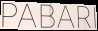
PABARI